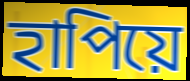
হাপিয়ে